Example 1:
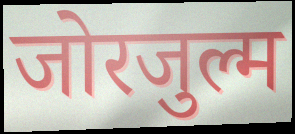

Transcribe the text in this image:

जोरजुल्म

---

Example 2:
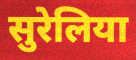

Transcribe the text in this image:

सुरेलिया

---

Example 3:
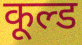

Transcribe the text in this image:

कूल्ड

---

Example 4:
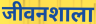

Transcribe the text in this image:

जीवनशाला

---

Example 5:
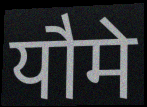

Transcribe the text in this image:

यौमे